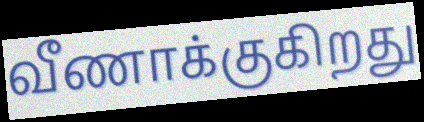
வீணாக்குகிறது